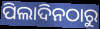
ପିଲାଦିନଠାରୁ